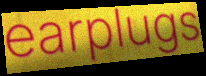
earplugs